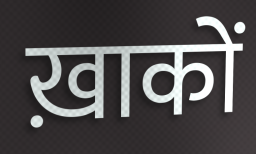
ख़ाकों